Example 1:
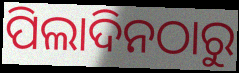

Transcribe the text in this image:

ପିଲାଦିନଠାରୁ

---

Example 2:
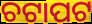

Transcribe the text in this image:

ଚଟାପଟ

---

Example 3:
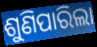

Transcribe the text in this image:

ଶୁଣିପାରିଲା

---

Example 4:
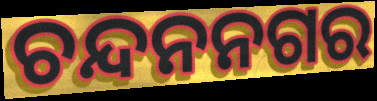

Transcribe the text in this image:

ଚନ୍ଦନନଗର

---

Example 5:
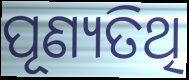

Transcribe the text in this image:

ପୂଣ୍ୟତିଥି